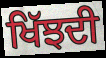
ਖਿੱਝਦੀ